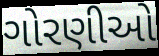
ગોરણીઓ